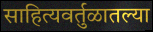
साहित्यवर्तुळातल्या